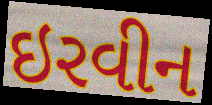
ઇરવીન